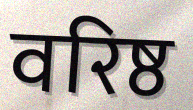
वरिष्ठ